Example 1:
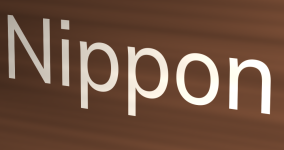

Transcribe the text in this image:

Nippon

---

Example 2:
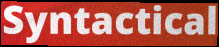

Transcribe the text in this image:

Syntactical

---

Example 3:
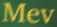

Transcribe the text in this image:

Mev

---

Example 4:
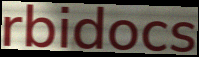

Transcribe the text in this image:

rbidocs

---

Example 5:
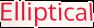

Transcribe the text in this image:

Elliptical